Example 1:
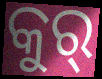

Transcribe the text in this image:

କୁର୍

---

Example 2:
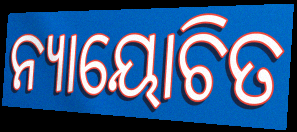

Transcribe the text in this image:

ନ୍ୟାୟୋଚିତ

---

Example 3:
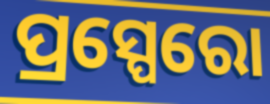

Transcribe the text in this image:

ପ୍ରସ୍ପେରୋ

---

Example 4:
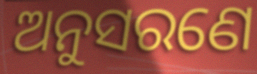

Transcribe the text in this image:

ଅନୁସରଣେ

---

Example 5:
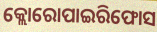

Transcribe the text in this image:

କ୍ଲୋରୋପାଇରିଫୋସ